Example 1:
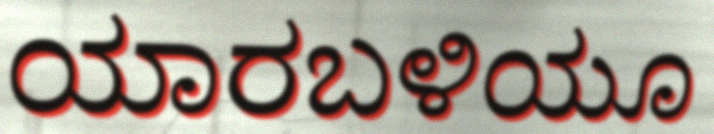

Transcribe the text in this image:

ಯಾರಬಳಿಯೂ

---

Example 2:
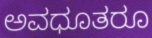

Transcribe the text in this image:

ಅವಧೂತರೂ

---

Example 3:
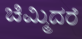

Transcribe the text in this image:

ಚಿಮ್ಮಿದರೆ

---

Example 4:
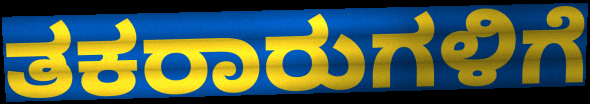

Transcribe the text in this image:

ತಕರಾರುಗಳಿಗೆ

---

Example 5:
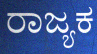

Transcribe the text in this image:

ರಾಜ್ಯಕ